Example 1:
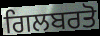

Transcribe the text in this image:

ਗਿਲਬਰਤੋ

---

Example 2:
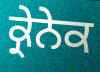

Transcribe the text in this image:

ਕ੍ਰੇਨੇਕ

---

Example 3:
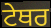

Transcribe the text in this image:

ਟੇਥਰ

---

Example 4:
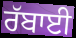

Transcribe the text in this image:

ਰੱਬਾਈ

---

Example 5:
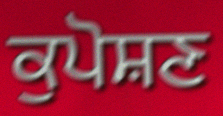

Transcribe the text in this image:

ਕੁਪੋਸ਼ਣ